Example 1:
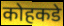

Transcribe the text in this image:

कोहकडे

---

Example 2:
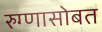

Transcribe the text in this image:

रुग्णासोबत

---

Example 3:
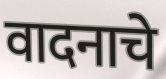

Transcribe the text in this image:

वादनाचे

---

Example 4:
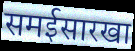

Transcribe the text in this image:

समईसारखा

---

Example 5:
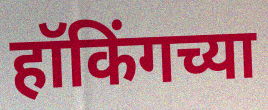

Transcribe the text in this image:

हॉकिंगच्या